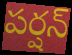
పర్షన్